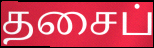
தசைப்